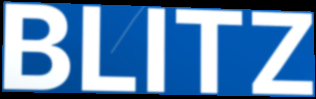
BLITZ